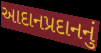
આદાનપ્રદાનનું